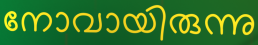
നോവായിരുന്നു